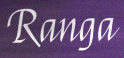
Ranga